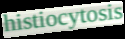
histiocytosis